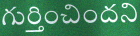
గుర్తించిందని